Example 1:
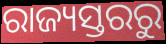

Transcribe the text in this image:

ରାଜ୍ୟସ୍ତରରୁ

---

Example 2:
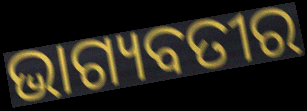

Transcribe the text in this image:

ଭାଗ୍ୟବତୀର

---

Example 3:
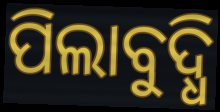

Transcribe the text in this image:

ପିଲାବୁଦ୍ଧି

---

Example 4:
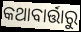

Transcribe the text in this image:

କଥାବାର୍ତ୍ତାରୁ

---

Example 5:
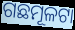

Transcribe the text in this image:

ଗଛମୂଳଟା